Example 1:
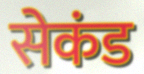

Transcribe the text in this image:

सेकंड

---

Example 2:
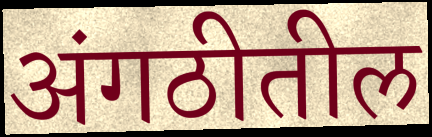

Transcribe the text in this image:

अंगठीतील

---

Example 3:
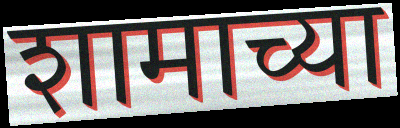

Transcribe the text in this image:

शामाच्या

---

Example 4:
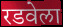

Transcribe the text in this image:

रडवेला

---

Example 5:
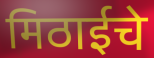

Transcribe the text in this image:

मिठाईचे